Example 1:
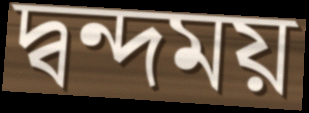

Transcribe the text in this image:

দ্বন্দময়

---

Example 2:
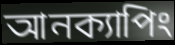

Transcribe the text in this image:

আনক্যাপিং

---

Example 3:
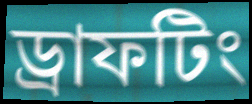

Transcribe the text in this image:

ড্রাফটিং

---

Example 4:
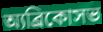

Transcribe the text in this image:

অ্যব্রিকোসভ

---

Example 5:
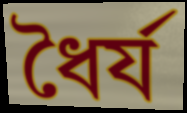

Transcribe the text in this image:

ধৈর্য